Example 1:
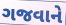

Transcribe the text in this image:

ગજવાને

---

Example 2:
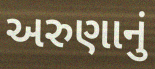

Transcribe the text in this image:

અરુણાનું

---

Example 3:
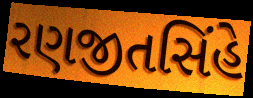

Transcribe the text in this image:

રણજીતસિંહે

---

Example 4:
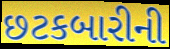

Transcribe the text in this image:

છટકબારીની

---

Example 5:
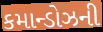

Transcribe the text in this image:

કમાન્ડોઝની